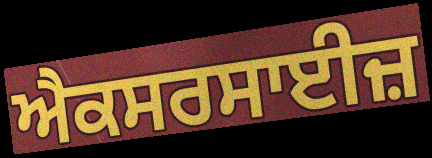
ਐਕਸਰਸਾਈਜ਼